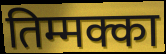
तिम्मक्का